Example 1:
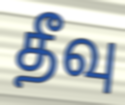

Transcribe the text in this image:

தீவு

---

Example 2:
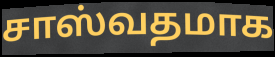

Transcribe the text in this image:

சாஸ்வதமாக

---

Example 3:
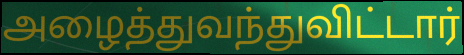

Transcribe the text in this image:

அழைத்துவந்துவிட்டார்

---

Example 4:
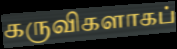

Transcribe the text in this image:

கருவிகளாகப்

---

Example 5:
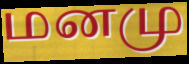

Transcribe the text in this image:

மனமு